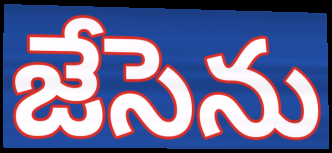
జేసెను